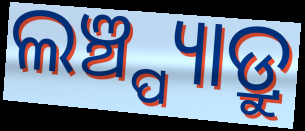
ଲଞ୍ଚ୍ପ୍ୟାଡ୍ରୁ